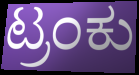
ಟ್ರಂಕು